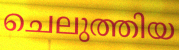
ചെലുത്തിയ